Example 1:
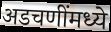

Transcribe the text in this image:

अडचणींमध्ये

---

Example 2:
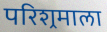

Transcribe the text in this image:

परिश्रमाला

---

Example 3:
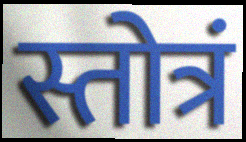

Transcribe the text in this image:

स्तोत्रं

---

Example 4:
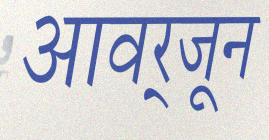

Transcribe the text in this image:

आवर्जून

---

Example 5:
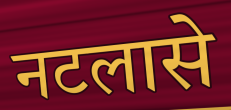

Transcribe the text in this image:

नटलासे